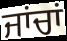
ਜਾਂਚਾਂ